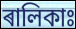
ৰালিকাঃ